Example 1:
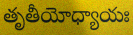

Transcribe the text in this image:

తృతీయోధ్యాయః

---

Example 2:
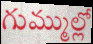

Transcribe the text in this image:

గుమ్ముల్లో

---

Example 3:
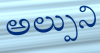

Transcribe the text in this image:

అల్పుని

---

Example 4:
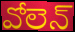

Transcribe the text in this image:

వోలెన్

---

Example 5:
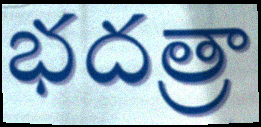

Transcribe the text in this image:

భదత్రా